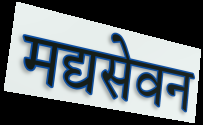
मद्यसेवन